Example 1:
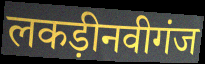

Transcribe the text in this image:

लकड़ीनवीगंज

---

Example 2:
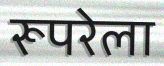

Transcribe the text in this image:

रूपरेला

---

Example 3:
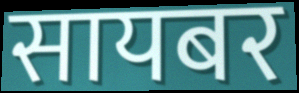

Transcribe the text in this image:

सायबर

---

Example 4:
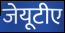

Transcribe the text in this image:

जेयूटीए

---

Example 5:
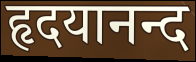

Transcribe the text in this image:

हृदयानन्द